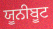
ਯੂਨੀਬੂਟ